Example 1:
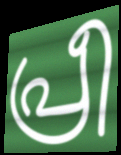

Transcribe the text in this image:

പ്രീ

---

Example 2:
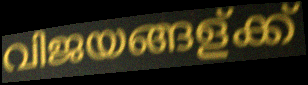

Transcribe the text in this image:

വിജയങ്ങള്ക്ക്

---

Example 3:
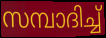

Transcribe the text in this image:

സമ്പാദിച്ച്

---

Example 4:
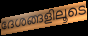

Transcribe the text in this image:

ദേശങ്ങളിലൂടെ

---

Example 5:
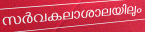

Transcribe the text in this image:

സർവകലാശാലയിലും